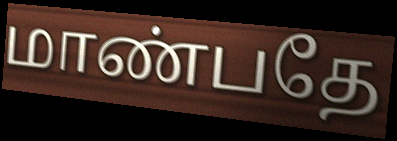
மாண்பதே